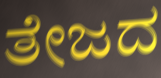
ತೇಜದ